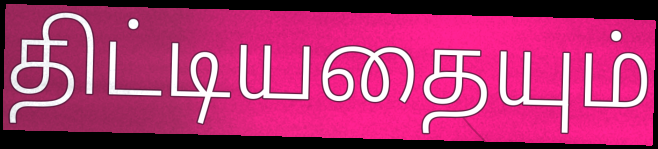
திட்டியதையும்